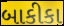
બાકીકા